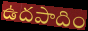
ఉదపాదిం